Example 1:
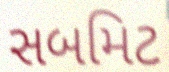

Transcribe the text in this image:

સબમિટ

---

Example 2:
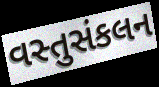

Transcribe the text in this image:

વસ્તુસંકલન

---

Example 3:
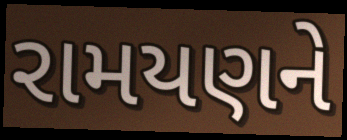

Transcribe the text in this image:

રામયણને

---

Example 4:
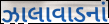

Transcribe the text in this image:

ઝાલાવાડનાં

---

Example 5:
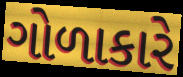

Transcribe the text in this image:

ગોળાકારે